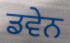
ਡਵੇਨ